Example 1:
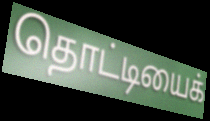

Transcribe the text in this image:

தொட்டியைக்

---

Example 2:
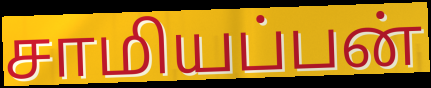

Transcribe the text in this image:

சாமியப்பன்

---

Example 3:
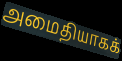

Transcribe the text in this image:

அமைதியாகக்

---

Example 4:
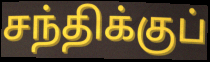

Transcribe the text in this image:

சந்திக்குப்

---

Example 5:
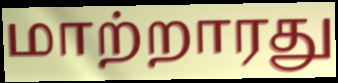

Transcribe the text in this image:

மாற்றாரது